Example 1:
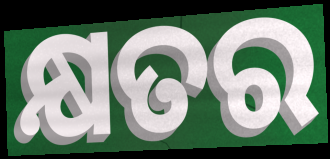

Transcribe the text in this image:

କ୍ଷତର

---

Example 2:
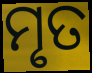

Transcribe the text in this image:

ମୃତ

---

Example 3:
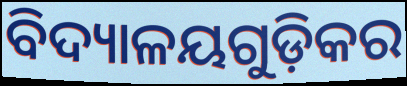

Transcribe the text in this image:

ବିଦ୍ୟାଳୟଗୁଡ଼ିକର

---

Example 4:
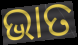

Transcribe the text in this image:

ଭାତ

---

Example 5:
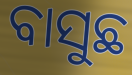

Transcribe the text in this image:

ବାସୁଛ